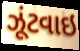
ઝૂંટવાઇ